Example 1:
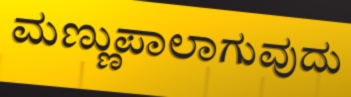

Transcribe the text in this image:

ಮಣ್ಣುಪಾಲಾಗುವುದು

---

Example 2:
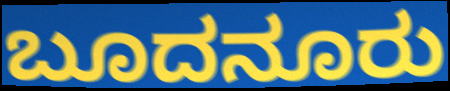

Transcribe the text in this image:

ಬೂದನೂರು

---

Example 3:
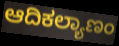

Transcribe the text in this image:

ಆದಿಕಲ್ಯಾಣಂ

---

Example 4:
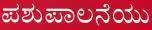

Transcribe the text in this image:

ಪಶುಪಾಲನೆಯು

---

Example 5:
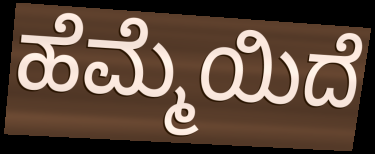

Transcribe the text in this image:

ಹೆಮ್ಮೆಯಿದೆ